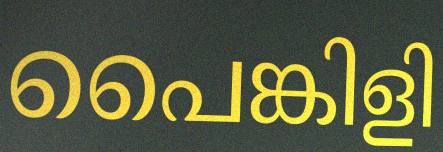
പൈങ്കിളി